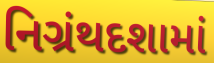
નિગ્રંથદશામાં